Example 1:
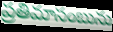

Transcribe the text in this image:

ప్రతిమాసంబును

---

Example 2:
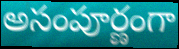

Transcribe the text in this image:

అసంపూర్ణంగా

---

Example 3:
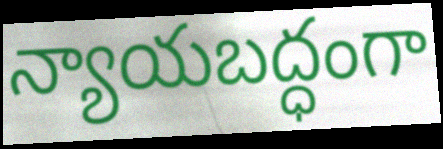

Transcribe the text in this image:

న్యాయబద్ధంగా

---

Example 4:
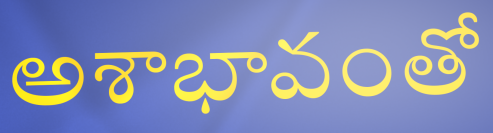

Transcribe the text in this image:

అశాభావంతో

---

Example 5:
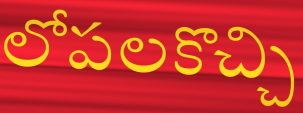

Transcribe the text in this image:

లోపలకొచ్చి